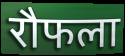
रौफला